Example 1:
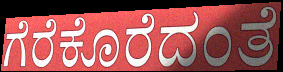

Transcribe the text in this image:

ಗೆರೆಕೊರೆದಂತೆ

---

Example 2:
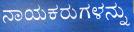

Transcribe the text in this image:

ನಾಯಕರುಗಳನ್ನು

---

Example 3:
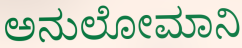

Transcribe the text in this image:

ಅನುಲೋಮಾನಿ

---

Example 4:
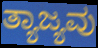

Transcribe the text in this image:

ತ್ಯಾಜ್ಯವು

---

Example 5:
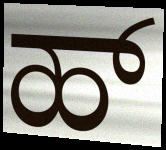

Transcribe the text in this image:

ಹ್